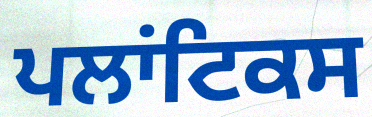
ਪਲਾਂਟਿਕਸ